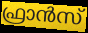
ഫ്രാൻസ്